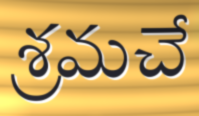
శ్రమచే